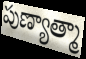
పుణ్యాత్మా